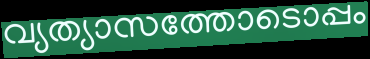
വ്യത്യാസത്തോടൊപ്പം